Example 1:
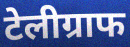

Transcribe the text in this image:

टेलीग्राफ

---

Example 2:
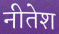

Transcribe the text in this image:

नीतेश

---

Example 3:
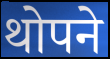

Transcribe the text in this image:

थोपने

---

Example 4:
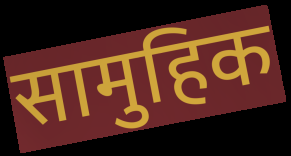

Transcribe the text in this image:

सामुहिक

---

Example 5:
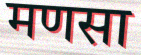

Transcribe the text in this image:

मणसा